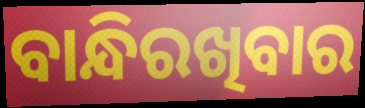
ବାନ୍ଧିରଖିବାର